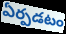
ఏర్పడటం